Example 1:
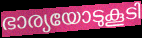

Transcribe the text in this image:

ഭാര്യയോടുകൂടി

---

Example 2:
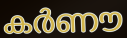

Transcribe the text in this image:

കർണൗ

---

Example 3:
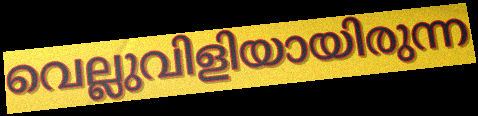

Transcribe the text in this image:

വെല്ലുവിളിയായിരുന്ന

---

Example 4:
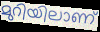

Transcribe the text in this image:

മുറിയിലാണ്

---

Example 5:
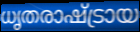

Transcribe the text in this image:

ധൃതരാഷ്ട്രായ